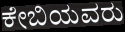
ಕೇಬಿಯವರು